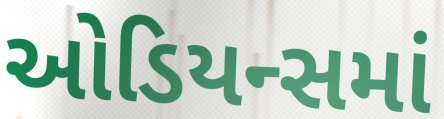
ઓડિયન્સમાં